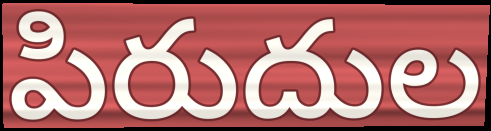
పిరుదుల